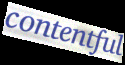
contentful